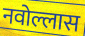
नवोल्लास